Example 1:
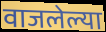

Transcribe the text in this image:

वाजलेल्या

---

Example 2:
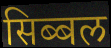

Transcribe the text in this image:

सिब्बल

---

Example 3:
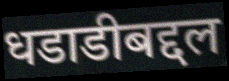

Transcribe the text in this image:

धडाडीबद्दल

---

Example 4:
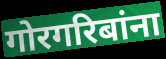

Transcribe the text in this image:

गोरगरिबांना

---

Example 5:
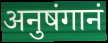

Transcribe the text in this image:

अनुषंगानं